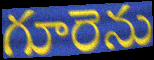
గూరెను